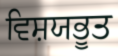
ਵਿਸ਼ਯਭੂਤ